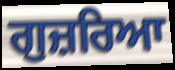
ਗੁਜ਼ਰਿਆ